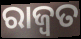
ରାଜ୍ୱତ